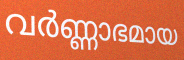
വർണ്ണാഭമായ